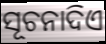
ସୂଚନାଦିଏ